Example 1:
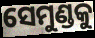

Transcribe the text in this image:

ସେମୁଣ୍ଡକୁ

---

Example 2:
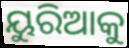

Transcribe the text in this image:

ୟୁରିଆକୁ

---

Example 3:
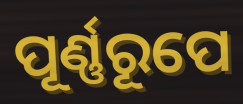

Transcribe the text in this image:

ପୂର୍ଣ୍ଣରୂପେ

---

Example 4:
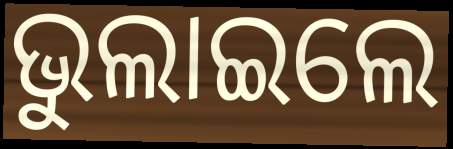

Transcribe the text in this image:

ଭୁଲାଇଲେ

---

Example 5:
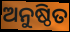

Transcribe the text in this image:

ଅନୁଷ୍ଠିତ